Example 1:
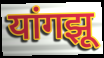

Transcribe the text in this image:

यांगझू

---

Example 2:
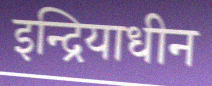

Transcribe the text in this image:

इन्द्रियाधीन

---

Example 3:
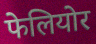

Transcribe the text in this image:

फेलियोर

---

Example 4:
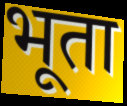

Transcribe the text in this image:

भूता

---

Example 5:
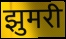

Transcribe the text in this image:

झुमरी